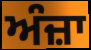
ਅੰਜ਼ਾ